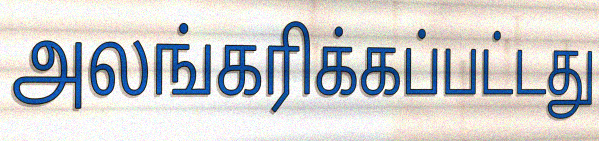
அலங்கரிக்கப்பட்டது